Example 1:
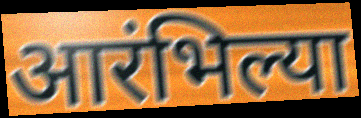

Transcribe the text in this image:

आरंभिल्या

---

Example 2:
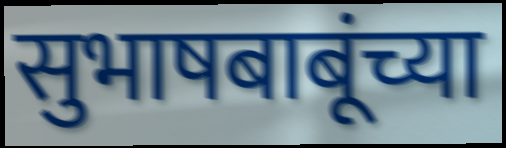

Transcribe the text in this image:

सुभाषबाबूंच्या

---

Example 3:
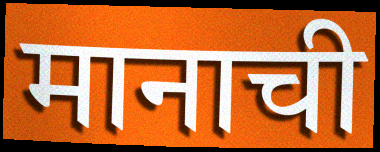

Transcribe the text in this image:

मानाची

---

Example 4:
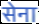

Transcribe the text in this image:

सेना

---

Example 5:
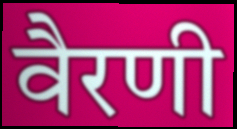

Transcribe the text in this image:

वैरणी